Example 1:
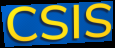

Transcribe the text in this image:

CSIS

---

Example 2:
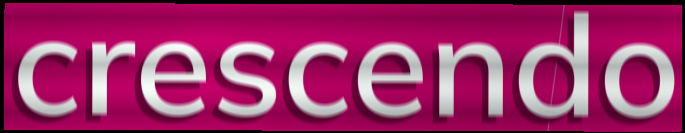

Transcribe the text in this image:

crescendo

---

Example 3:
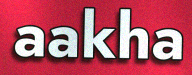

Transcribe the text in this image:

aakha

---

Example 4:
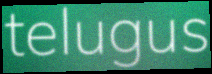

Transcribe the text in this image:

telugus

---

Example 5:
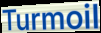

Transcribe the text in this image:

Turmoil